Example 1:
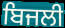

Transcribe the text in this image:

ਬਿਜਲੀ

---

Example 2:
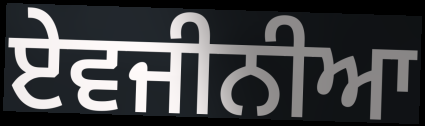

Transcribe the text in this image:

ਏਵਜੀਨੀਆ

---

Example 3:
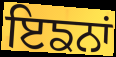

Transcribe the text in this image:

ਇਙਨਾਂ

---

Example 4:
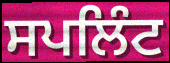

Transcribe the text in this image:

ਸਪਲਿੰਟ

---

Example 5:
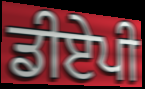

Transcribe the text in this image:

ਡੀਏਪੀ